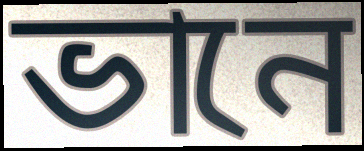
ভানে